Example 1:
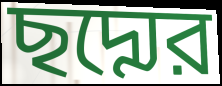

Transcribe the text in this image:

ছদ্মের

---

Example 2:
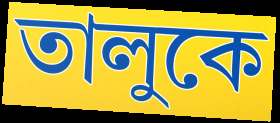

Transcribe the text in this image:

তালুকে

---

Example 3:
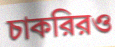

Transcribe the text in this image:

চাকরিরও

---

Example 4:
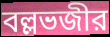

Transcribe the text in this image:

বল্লভজীর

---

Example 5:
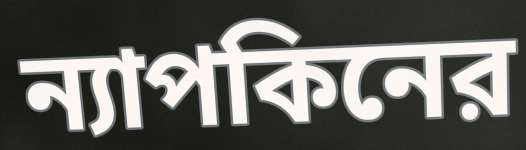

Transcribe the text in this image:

ন্যাপকিনের